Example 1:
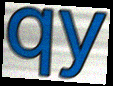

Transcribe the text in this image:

qy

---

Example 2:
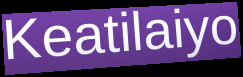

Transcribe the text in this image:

Keatilaiyo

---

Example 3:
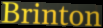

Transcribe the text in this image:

Brinton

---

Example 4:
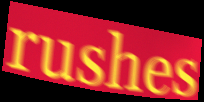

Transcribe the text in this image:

rushes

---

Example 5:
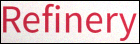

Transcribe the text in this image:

Refinery